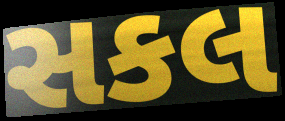
સકલ